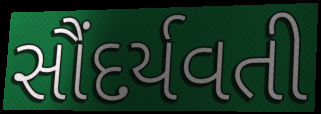
સૌંદર્યવતી